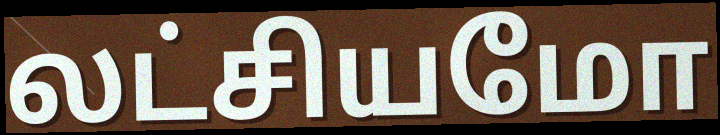
லட்சியமோ